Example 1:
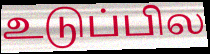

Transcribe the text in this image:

உடுப்பில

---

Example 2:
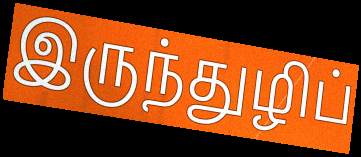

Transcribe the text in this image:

இருந்துழிப்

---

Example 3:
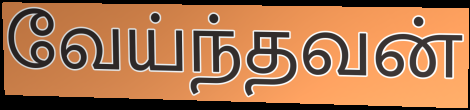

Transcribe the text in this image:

வேய்ந்தவன்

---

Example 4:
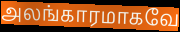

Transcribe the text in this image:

அலங்காரமாகவே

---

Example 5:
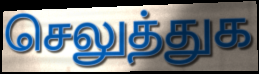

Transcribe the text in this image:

செலுத்துக